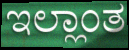
ಇಲ್ಲಾಂತ